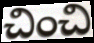
చించి